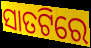
ସାତଟିରେ